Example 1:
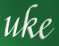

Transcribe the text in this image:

uke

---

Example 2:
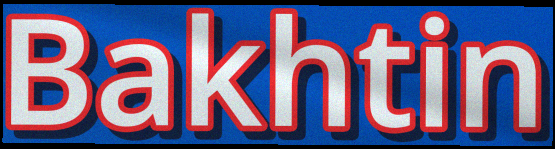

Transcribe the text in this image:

Bakhtin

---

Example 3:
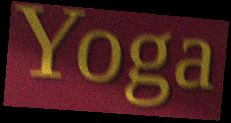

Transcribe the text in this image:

Yoga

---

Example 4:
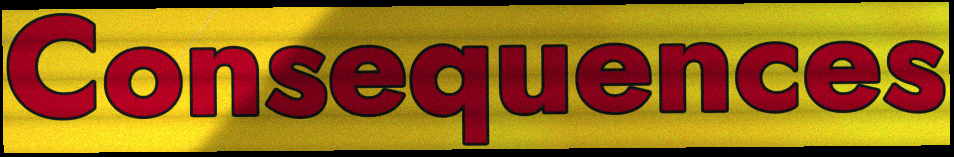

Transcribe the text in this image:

Consequences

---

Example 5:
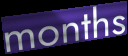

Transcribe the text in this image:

months